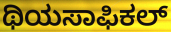
ಥಿಯಸಾಫಿಕಲ್